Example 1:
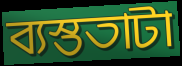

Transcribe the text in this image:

ব্যস্ততাটা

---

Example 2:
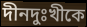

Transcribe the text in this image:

দীনদুঃখীকে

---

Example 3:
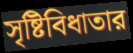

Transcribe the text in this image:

সৃষ্টিবিধাতার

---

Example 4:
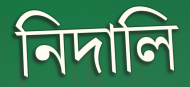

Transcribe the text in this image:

নিদালি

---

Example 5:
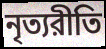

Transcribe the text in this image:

নৃত্যরীতি